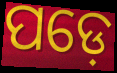
ପଡ଼େ